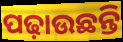
ପଢ଼ାଉଛନ୍ତି